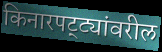
किनारपट्ट्यांवरील